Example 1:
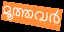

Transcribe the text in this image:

മൂത്തവർ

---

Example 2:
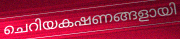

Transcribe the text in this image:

ചെറിയകഷണങ്ങളായി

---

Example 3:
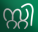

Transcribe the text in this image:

സ്റ്റി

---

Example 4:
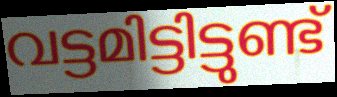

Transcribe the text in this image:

വട്ടമിട്ടിട്ടുണ്ട്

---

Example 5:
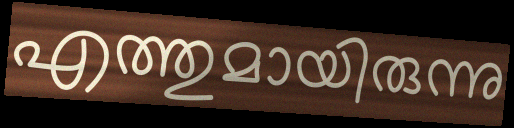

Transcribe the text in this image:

എത്തുമായിരുന്നു